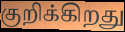
குறிக்கிறது